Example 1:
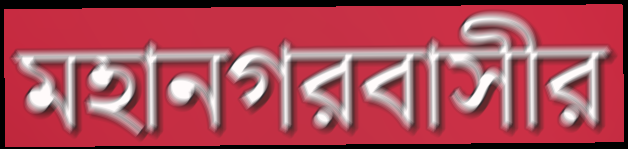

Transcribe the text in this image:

মহানগরবাসীর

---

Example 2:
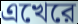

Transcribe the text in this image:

এখেরে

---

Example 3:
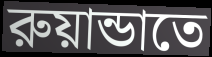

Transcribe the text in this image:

রুয়ান্ডাতে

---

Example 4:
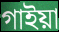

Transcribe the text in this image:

গাইয়া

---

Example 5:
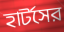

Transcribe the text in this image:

হার্টসের